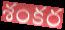
శంకర